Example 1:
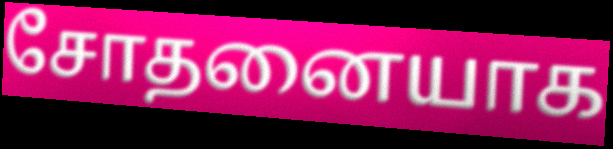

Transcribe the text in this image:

சோதனையாக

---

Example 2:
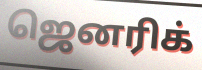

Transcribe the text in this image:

ஜெனரிக்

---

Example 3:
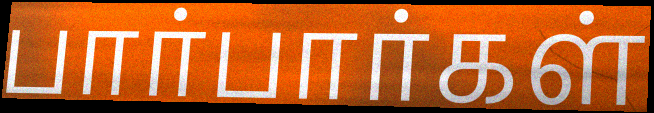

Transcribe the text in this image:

பார்பார்கள்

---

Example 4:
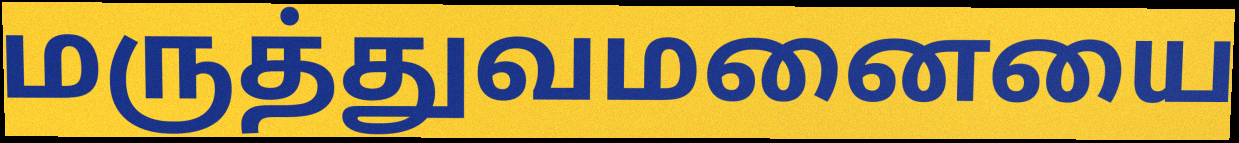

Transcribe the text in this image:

மருத்துவமனையை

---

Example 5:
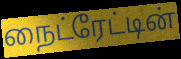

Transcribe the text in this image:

நைட்ரேட்டின்